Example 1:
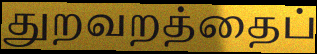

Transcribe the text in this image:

துறவறத்தைப்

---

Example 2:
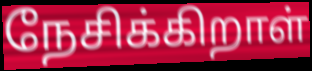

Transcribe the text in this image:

நேசிக்கிறாள்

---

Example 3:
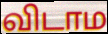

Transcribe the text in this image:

விடாம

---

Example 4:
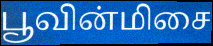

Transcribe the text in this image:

பூவின்மிசை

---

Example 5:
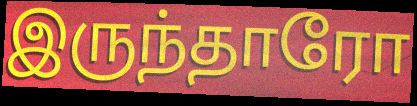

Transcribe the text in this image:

இருந்தாரோ